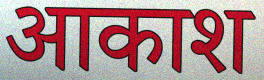
आकाश